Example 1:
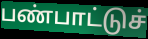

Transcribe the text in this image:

பண்பாட்டுச்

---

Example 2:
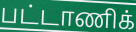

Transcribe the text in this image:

பட்டாணிக்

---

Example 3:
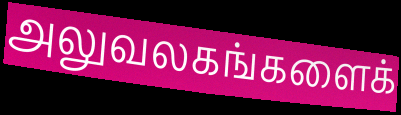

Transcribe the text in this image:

அலுவலகங்களைக்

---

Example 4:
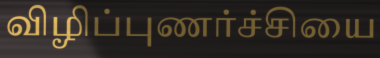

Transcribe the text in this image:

விழிப்புணர்ச்சியை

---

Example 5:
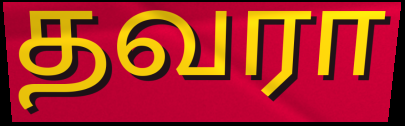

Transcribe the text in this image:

தவரா